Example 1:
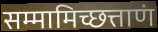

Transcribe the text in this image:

सम्मामिच्छत्ताणं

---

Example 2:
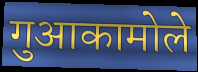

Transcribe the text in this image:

गुआकामोले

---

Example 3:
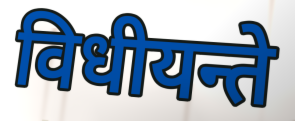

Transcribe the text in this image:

विधीयन्ते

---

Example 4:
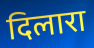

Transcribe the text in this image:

दिलारा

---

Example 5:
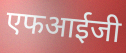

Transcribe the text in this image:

एफआईजी